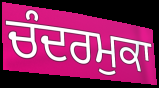
ਚੰਦਰਮੁਕਾ